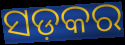
ସଡ଼କର